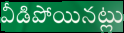
వీడిపోయినట్లు